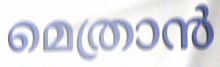
മെത്രാൻ